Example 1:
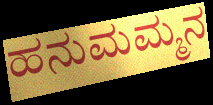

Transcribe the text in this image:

ಹನುಮಮ್ಮನ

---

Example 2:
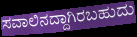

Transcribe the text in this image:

ಸವಾಲಿನದ್ದಾಗಿರಬಹುದು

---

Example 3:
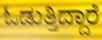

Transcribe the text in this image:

ಓಡುತ್ತಿದ್ದಾರೆ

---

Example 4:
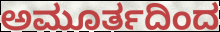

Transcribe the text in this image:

ಅಮೂರ್ತದಿಂದ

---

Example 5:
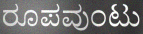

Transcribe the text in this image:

ರೂಪವುಂಟು